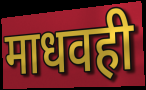
माधवही